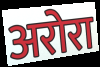
अरोरा